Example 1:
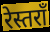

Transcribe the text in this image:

रेस्तराँ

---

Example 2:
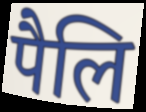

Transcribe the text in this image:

पैलि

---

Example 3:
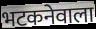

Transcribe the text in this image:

भटकनेवाला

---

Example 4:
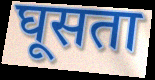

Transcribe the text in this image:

घूसता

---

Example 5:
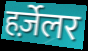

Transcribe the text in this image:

हर्ज़ेलर